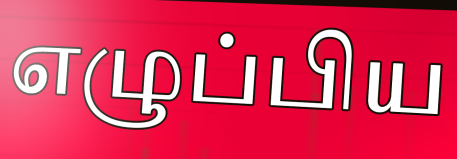
எழுப்பிய